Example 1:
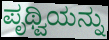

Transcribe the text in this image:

ಪೃಥ್ವಿಯನ್ನು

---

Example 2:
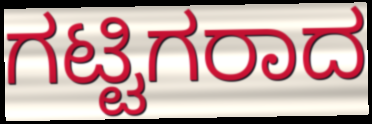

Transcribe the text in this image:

ಗಟ್ಟಿಗರಾದ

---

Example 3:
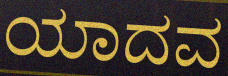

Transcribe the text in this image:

ಯಾದವ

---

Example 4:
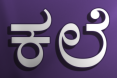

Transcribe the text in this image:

ಕಲೆ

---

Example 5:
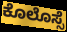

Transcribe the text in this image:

ಕೊಲೊಸ್ಸೆ